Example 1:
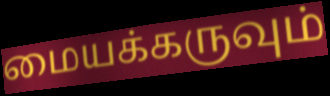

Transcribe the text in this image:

மையக்கருவும்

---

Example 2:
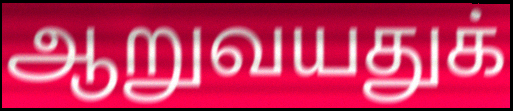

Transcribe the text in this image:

ஆறுவயதுக்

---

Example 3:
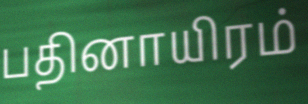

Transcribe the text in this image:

பதினாயிரம்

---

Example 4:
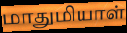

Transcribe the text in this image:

மாதுமியாள்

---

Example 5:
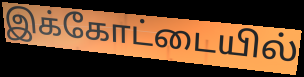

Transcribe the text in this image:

இக்கோட்டையில்